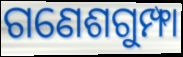
ଗଣେଶଗୁମ୍ଫା